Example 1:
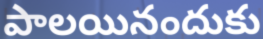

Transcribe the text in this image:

పాలయినందుకు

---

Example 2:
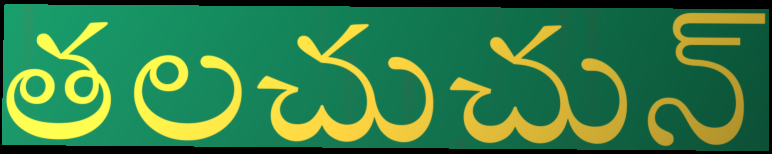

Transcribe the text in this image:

తలచుచున్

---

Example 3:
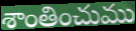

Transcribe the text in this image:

శాంతించుము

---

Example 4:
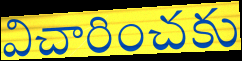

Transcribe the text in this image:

విచారించకు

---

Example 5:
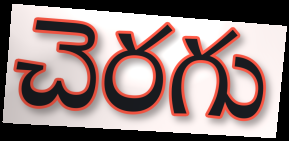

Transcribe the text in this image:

చెరగు